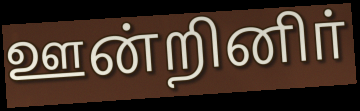
ஊன்றினிர்